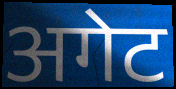
अगेट